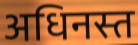
अधिनस्त